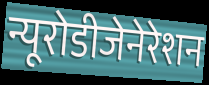
न्यूरोडीजेनेरेशन